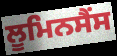
ਲੂਮਿਨਸੈਂਸ